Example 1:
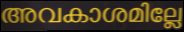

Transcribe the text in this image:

അവകാശമില്ലേ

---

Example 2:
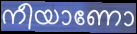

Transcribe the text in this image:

നീയാണോ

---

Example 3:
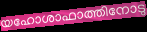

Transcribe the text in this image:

യഹോശാഫാത്തിനോടു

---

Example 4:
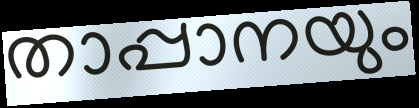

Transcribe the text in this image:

താപ്പാനയും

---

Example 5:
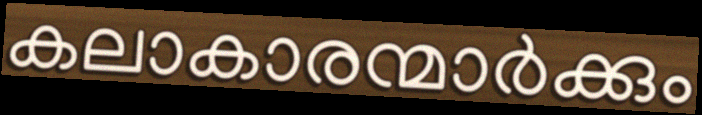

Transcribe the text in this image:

കലാകാരന്മാർക്കും